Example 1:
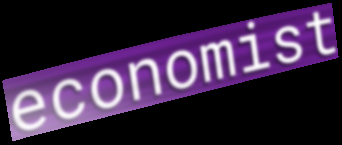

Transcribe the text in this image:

economist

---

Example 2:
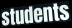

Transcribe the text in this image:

students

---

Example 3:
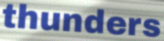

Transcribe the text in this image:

thunders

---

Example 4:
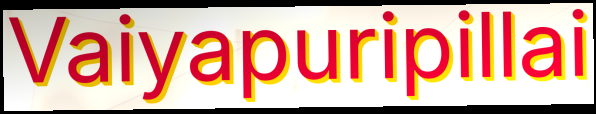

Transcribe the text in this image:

Vaiyapuripillai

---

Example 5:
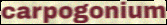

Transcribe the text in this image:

carpogonium